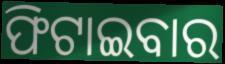
ଫିଟାଇବାର